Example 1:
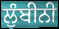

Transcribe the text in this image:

ਲੁੰਬੀਨੀ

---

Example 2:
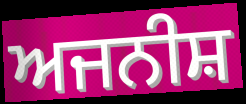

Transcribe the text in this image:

ਅਜਨੀਸ਼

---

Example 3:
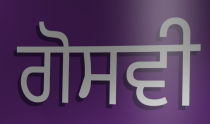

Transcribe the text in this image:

ਗੋਸਵੀ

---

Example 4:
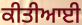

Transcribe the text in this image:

ਕੀਤੀਆਈ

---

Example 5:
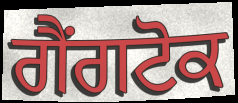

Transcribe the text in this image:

ਗੈਂਗਟੋਕ